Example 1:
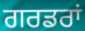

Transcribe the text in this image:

ਗਰਡਰਾਂ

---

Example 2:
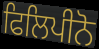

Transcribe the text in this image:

ਫਿਲਿਪੀਨੋ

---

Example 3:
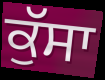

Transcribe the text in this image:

ਕੁੱਸਾ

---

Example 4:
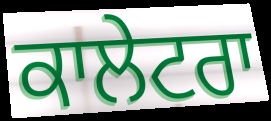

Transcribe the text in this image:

ਕਾਲੇਟਰਾ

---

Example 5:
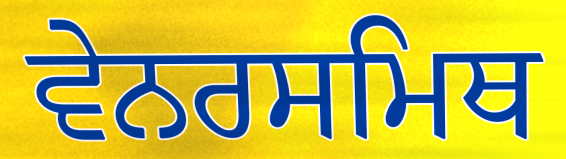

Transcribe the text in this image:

ਵੇਨਰਸਮਿਥ